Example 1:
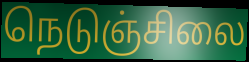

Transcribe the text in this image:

நெடுஞ்சிலை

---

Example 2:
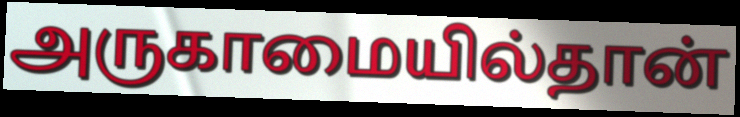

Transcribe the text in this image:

அருகாமையில்தான்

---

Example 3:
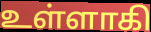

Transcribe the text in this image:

உள்ளாகி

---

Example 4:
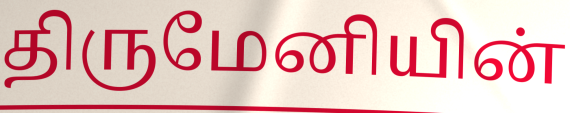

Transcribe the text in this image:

திருமேனியின்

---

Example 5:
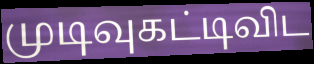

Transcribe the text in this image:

முடிவுகட்டிவிட